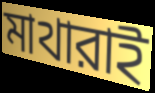
মাথারাই